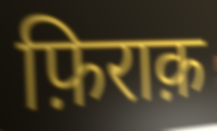
फ़िराक़